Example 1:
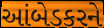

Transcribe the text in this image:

આંબેડકરને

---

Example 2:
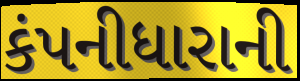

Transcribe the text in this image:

કંપનીધારાની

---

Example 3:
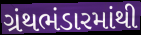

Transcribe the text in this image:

ગ્રંથભંડારમાંથી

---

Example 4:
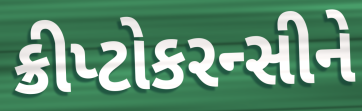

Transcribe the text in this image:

ક્રીપ્ટોકરન્સીને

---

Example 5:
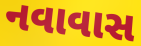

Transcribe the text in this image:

નવાવાસ